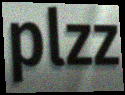
plzz